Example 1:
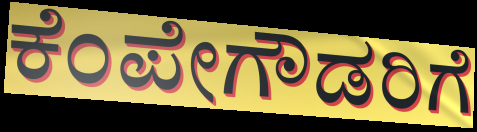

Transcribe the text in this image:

ಕೆಂಪೇಗೌಡರಿಗೆ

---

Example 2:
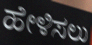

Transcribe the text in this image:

ಹೇಳಿಸಲು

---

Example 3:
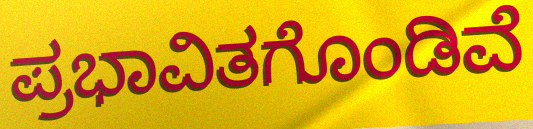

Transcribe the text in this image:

ಪ್ರಭಾವಿತಗೊಂಡಿವೆ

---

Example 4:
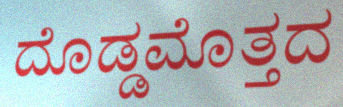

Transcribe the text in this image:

ದೊಡ್ಡಮೊತ್ತದ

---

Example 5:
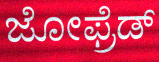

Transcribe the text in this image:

ಜೋಫ್ರೆಡ್